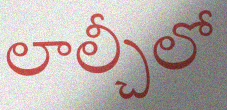
లాల్చీలో